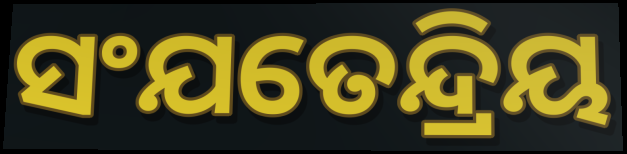
ସଂଯତେନ୍ଦ୍ରିୟ